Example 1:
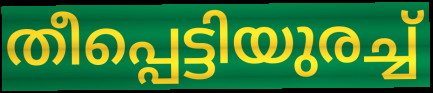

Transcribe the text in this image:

തീപ്പെട്ടിയുരച്ച്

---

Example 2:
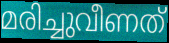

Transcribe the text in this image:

മരിച്ചുവീണത്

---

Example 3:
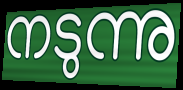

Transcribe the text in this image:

നടുന്നു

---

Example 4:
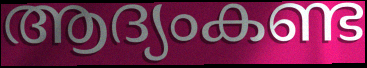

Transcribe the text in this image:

ആദ്യംകണ്ട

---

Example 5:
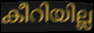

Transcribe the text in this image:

കീറിയില്ല